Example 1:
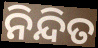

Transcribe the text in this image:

ନିନ୍ଦିତ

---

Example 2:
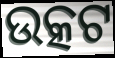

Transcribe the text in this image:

ଉତ୍କଟ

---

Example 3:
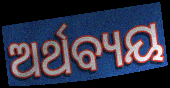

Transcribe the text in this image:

ଅର୍ଥବ୍ୟୟ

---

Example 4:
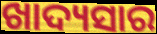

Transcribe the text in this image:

ଖାଦ୍ୟସାର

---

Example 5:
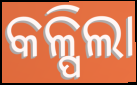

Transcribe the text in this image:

କଳ୍ପିଲା